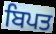
ਬਿਪਤ